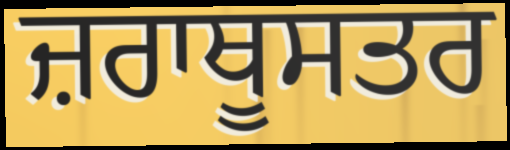
ਜ਼ਰਾਥੂਸਤਰ